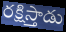
రక్షిస్తాడు